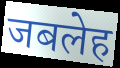
जबलेह